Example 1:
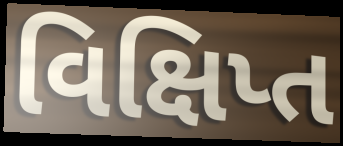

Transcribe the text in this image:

વિક્ષિપ્ત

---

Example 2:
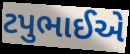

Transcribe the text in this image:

ટપુભાઈએ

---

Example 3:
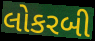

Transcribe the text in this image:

લોકરબી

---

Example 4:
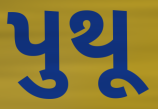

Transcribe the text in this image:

પુથૂ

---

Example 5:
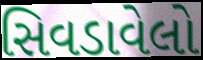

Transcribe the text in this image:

સિવડાવેલો